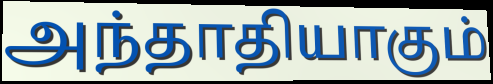
அந்தாதியாகும்